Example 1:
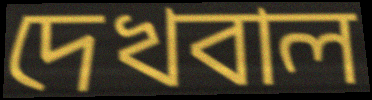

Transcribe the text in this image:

দেখবাল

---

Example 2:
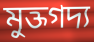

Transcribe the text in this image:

মুক্তগদ্য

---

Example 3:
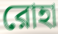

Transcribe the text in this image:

রোহা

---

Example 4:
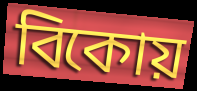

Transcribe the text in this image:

বিকোয়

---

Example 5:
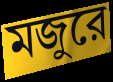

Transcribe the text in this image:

মজুরে